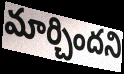
మార్చిందని